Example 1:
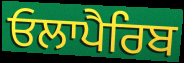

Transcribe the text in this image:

ਓਲਾਪੈਰਿਬ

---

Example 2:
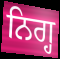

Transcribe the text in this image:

ਨਿਗ੍ਹ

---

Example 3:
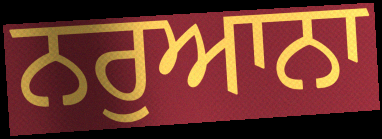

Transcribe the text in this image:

ਨਰੁਆਨਾ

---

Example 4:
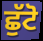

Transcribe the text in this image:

ਛੁੱਟੋ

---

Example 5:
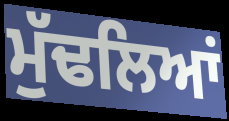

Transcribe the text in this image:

ਮੁੱਢਲਿਆਂ